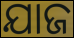
ଯାଜ